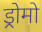
ड्रोमो